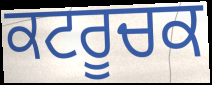
ਕਟਰੂਚਕ